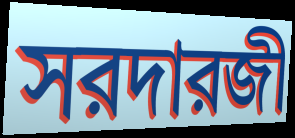
সরদারজী